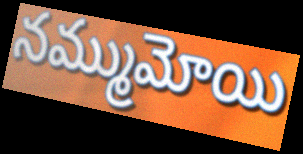
నమ్ముమోయి